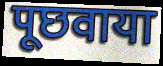
पूछवाया